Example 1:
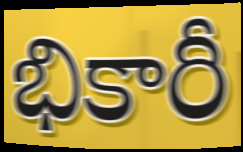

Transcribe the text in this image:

భికారీ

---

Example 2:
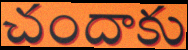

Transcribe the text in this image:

చందాకు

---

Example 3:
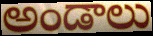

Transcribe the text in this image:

అండాలు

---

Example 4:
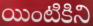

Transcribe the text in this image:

యింటికిని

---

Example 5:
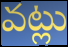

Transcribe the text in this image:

వట్లు